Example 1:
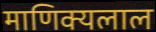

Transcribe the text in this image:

माणिक्यलाल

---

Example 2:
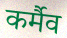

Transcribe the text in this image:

कर्मैव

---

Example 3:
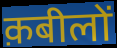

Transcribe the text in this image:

क़बीलों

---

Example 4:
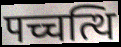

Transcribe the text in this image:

पच्चत्थि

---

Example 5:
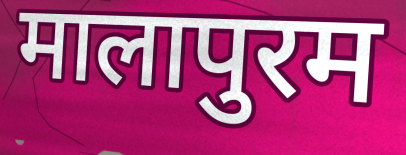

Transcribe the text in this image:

मालापुरम